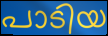
പാടിയ